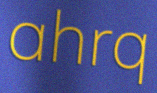
ahrq